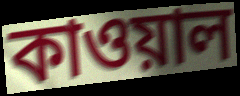
কাওয়াল